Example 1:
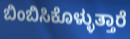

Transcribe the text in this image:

ಬಿಂಬಿಸಿಕೊಳ್ಳುತ್ತಾರೆ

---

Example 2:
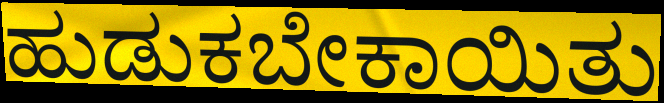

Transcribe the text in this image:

ಹುಡುಕಬೇಕಾಯಿತು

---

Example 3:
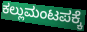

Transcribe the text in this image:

ಕಲ್ಲುಮಂಟಪಕ್ಕೆ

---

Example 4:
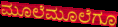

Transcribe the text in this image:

ಮೂಲೆಮೂಲೆಗೂ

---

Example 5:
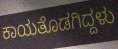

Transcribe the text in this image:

ಕಾಯತೊಡಗಿದ್ದಳು